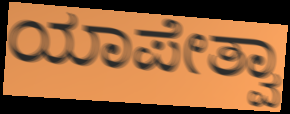
ಯಾಪೇತ್ವಾ